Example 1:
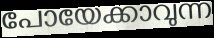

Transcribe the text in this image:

പോയേക്കാവുന്ന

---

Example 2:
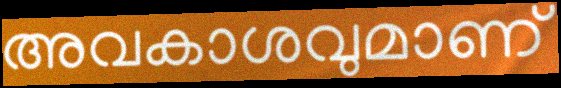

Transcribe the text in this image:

അവകാശവുമാണ്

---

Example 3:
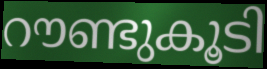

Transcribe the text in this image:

റൗണ്ടുകൂടി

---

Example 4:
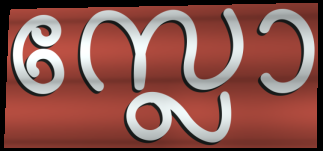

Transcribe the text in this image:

സ്ലോ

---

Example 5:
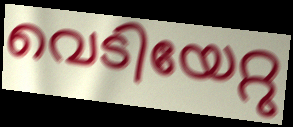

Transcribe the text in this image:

വെടിയേറ്റു